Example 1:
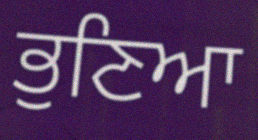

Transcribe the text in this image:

ਭੁਣਿਆ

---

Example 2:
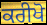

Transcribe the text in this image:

ਕਰੀਖੋ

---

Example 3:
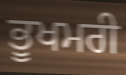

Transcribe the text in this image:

ਭੂਖਮਰੀ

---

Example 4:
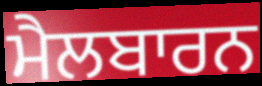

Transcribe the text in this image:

ਮੈਲਬਾਰਨ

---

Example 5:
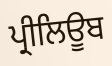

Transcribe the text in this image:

ਪ੍ਰੀਲਿਊਬ